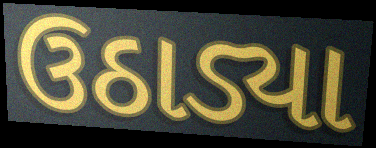
ઉઠાડ્યા